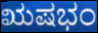
ಋಷಭಂ